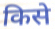
किसे